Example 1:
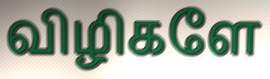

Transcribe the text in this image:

விழிகளே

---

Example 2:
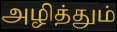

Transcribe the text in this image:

அழித்தும்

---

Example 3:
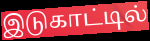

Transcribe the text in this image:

இடுகாட்டில்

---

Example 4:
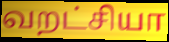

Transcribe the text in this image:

வறட்சியா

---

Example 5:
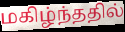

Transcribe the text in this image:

மகிழ்ந்ததில்